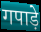
गपाड़े